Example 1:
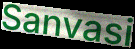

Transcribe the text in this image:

Sanvasi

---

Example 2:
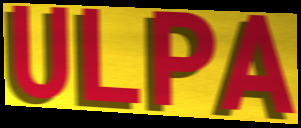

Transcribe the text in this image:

ULPA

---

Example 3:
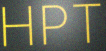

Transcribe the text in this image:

HPT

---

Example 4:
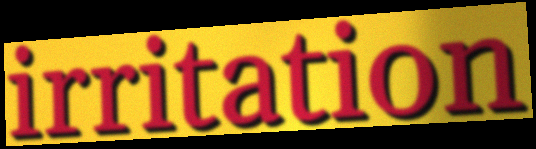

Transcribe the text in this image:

irritation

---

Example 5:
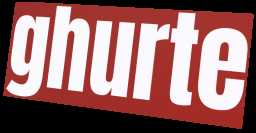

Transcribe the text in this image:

ghurte